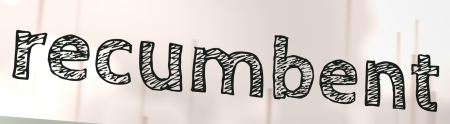
recumbent